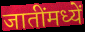
जातींमध्यें